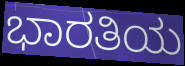
ಭಾರತಿಯ